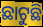
ଛାଟୁଛି